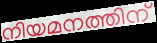
നിയമനത്തിന്